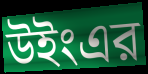
উইংএর